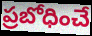
ప్రబోధించే